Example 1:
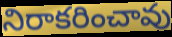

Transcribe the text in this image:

నిరాకరించావు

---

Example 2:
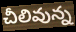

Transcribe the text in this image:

చీలివున్న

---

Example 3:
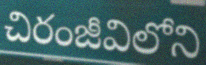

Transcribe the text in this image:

చిరంజీవిలోని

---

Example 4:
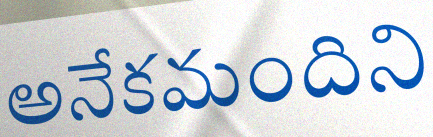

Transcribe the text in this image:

అనేకమందిని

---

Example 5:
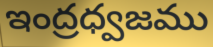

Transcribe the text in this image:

ఇంద్రధ్వజము